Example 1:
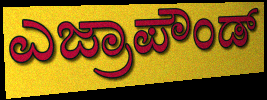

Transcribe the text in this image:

ಎಜ್ರಾಪೌಂಡ್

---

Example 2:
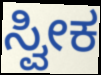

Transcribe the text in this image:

ಸ್ವೀಕ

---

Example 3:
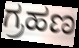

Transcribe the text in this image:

ಗ್ರಹಣ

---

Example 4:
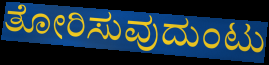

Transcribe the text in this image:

ತೋರಿಸುವುದುಂಟು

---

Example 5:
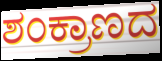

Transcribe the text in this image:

ಶಂಕ್ರಾಣದ